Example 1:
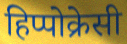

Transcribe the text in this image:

हिप्पोक्रेसी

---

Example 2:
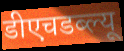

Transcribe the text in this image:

डीएचडब्ल्यू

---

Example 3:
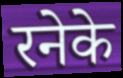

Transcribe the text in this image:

रनेके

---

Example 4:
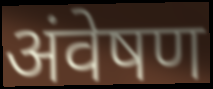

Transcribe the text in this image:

अंवेषण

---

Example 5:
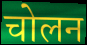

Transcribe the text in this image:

चोलन